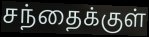
சந்தைக்குள்